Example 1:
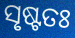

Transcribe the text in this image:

ସୃଷ୍ଟତଃ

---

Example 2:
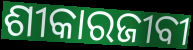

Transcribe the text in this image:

ଶୀକାରଜୀବୀ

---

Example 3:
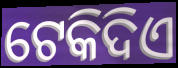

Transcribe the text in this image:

ଟେକିଦିଏ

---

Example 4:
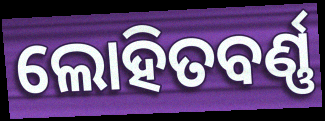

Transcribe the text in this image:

ଲୋହିତବର୍ଣ୍ଣ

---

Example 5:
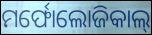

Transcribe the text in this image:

ମର୍ଫୋଲୋଜିକାଲ୍